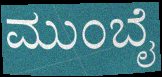
ಮುಂಬೈ